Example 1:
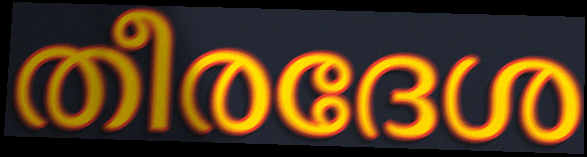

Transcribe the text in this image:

തീരദേശ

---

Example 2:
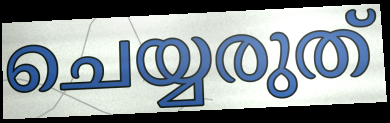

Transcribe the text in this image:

ചെയ്യരുത്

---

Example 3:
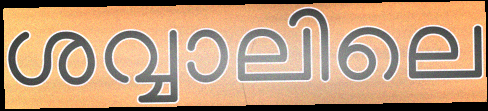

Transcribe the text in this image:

ശവ്വാലിലെ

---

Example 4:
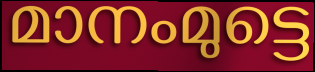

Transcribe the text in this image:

മാനംമുട്ടെ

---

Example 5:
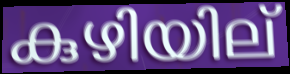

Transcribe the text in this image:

കുഴിയില്